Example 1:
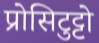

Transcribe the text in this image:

प्रोसिटुट्टो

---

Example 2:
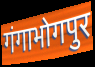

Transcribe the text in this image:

गंगाभोगपुर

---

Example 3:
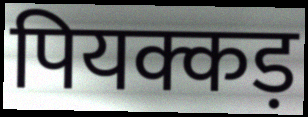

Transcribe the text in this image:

पियक्कड़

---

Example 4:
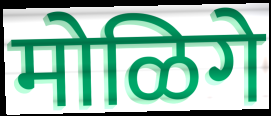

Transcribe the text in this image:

मोळिगे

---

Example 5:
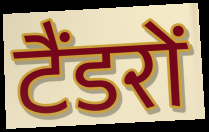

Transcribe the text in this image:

टैंडरों